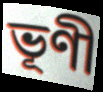
ভূণী